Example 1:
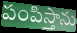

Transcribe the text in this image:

పంపిస్తాను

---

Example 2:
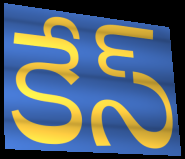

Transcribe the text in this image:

కేస్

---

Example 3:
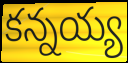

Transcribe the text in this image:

కన్నయ్య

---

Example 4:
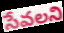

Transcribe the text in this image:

సేవలని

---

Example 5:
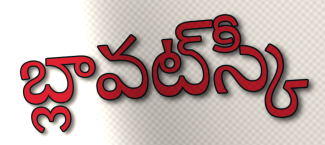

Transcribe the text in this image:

బ్లావట్‌స్కీ